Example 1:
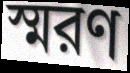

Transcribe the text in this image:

স্মরণ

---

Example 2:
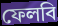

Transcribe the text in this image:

ফেলবি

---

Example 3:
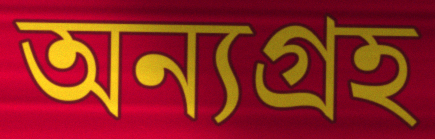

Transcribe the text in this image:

অন্যগ্রহ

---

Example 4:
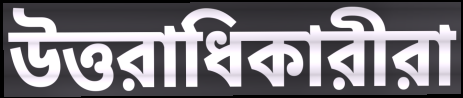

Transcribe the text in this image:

উত্তরাধিকারীরা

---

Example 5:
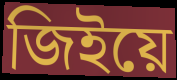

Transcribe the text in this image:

জিইয়ে